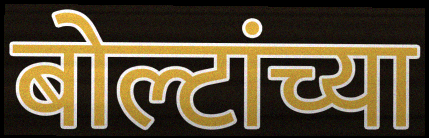
बोल्टांच्या